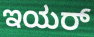
ಇಯರ್